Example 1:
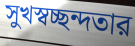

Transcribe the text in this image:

সুখস্বচ্ছন্দতার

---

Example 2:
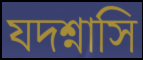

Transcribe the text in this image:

যদশ্নাসি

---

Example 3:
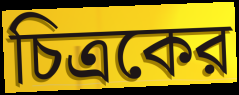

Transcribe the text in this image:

চিত্রকের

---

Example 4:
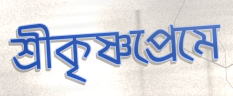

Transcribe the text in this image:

শ্রীকৃষ্ণপ্রেমে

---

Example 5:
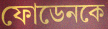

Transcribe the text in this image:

ফোডেনকে